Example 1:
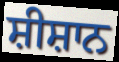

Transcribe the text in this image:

ਸ਼ੀਸ਼ਾਨ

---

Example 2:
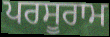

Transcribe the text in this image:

ਪਰਸੂਰਾਮ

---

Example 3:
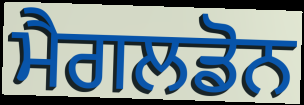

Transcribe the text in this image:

ਮੈਗਲਡੋਨ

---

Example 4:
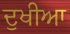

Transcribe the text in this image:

ਦੁਖੀਆ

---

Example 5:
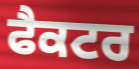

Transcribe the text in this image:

ਫੈਕਟਰ